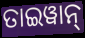
ତାଇୱାନ୍